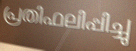
പ്രതിഫലിപ്പിച്ചു